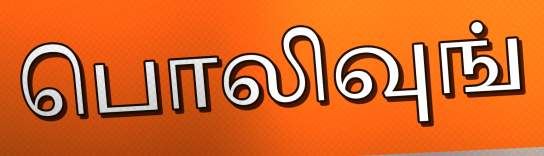
பொலிவுங்